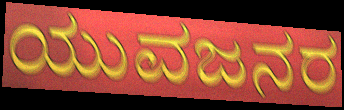
ಯುವಜನರ